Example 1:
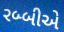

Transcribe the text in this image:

રબ્બીએ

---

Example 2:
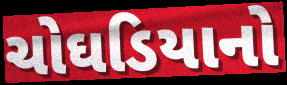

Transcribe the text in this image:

ચોઘડિયાનો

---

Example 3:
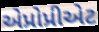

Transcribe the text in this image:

એપ્રોપ્રીએટ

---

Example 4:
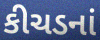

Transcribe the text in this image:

કીચડનાં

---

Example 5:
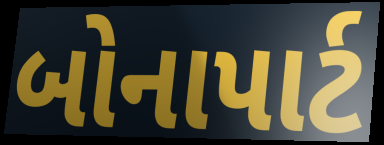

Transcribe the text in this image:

બોનાપાર્ટ